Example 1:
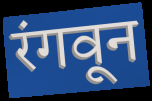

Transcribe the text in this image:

रंगवून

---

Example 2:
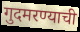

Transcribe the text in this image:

गुदमरण्याची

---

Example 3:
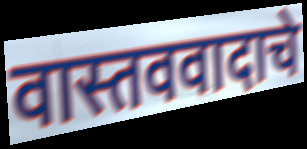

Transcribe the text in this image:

वास्तववादाचे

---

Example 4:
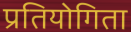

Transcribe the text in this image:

प्रतियोगिता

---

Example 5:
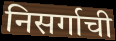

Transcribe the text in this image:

निसर्गाची